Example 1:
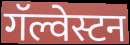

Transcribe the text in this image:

गॅल्वेस्टन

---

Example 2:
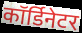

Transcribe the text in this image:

कॉर्डिनेटर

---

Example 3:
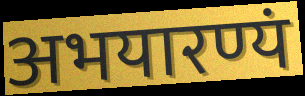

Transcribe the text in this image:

अभयारण्यं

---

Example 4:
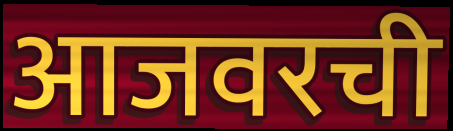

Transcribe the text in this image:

आजवरची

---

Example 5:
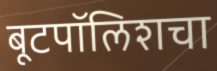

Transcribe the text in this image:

बूटपॉलिशचा